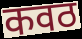
कवठ